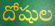
దోషుల